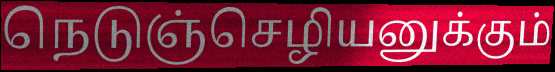
நெடுஞ்செழியனுக்கும்